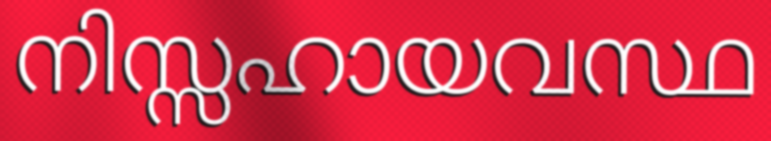
നിസ്സഹായവസ്ഥ